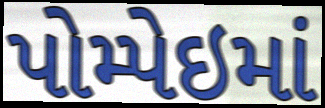
પોમ્પેઇમાં